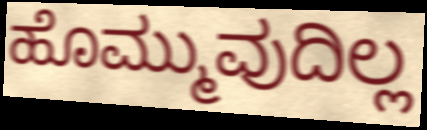
ಹೊಮ್ಮುವುದಿಲ್ಲ